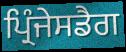
ਪ੍ਰਿੰਜੇਸਡੈਗ